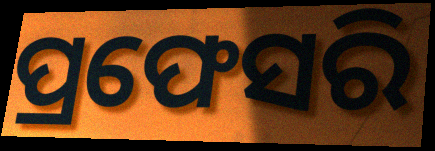
ପ୍ରଫେସରି